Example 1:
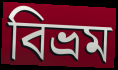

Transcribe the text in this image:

বিভ্রম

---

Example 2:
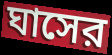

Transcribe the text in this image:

ঘাসের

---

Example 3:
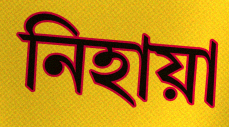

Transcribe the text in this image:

নিহায়া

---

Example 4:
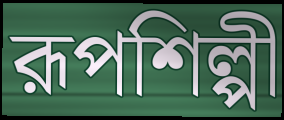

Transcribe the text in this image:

রূপশিল্পী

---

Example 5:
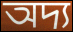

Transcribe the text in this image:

অদ্য